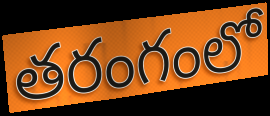
తరంగంలో